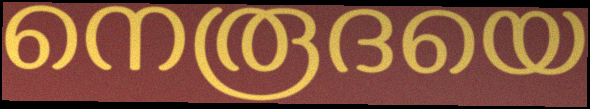
നെരൂദയെ